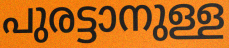
പുരട്ടാനുള്ള